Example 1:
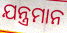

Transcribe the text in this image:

ଯନ୍ତ୍ରମାନ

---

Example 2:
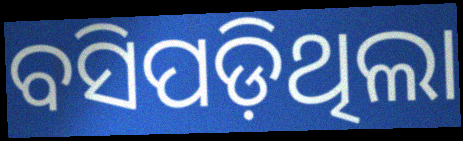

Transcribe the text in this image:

ବସିପଡ଼ିଥିଲା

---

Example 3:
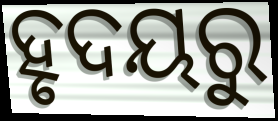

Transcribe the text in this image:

ହୃଦୟରୁ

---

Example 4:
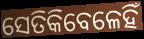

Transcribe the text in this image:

ସେତିକିବେଳେହିଁ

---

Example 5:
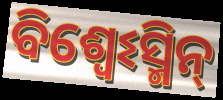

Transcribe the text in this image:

ବିଶ୍ଵେଽସ୍ମିନ୍